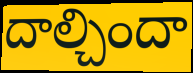
దాల్చిందా